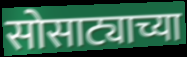
सोसाट्याच्या